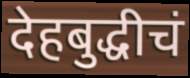
देहबुद्धीचं